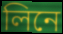
লিনে